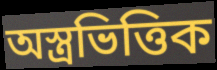
অস্ত্রভিত্তিক